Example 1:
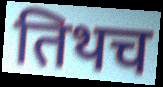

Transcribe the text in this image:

तिथच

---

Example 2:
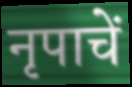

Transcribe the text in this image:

नृपाचें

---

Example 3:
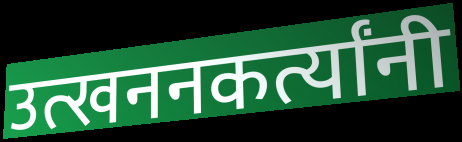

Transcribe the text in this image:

उत्खननकर्त्यांनी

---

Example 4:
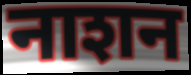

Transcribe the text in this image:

नाशन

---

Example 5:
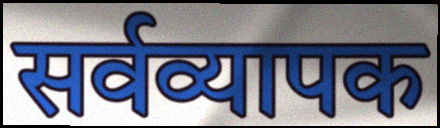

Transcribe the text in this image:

सर्वव्यापक